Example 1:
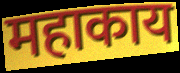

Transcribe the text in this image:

महाकाय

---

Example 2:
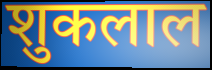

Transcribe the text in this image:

शुकलाल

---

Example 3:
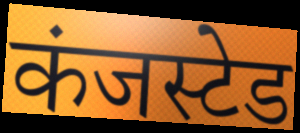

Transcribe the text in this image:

कंजस्टेड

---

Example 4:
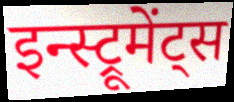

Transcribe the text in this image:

इन्स्ट्रूमेंट्स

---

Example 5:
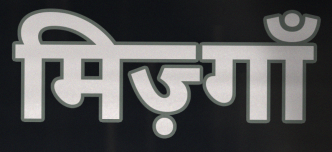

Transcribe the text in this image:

मिज़्गाँ